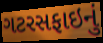
ગટરસફાઇનું